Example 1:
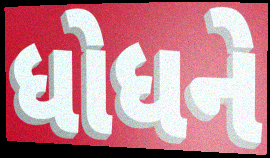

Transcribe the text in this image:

ધોધને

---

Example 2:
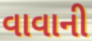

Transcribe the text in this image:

વાવાની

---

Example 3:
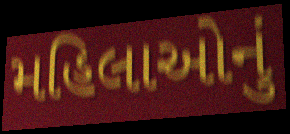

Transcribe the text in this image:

મહિલાઓનું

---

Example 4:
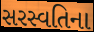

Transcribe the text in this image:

સરસ્વતિના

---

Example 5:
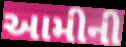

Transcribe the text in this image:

આમીની